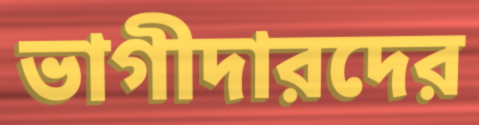
ভাগীদারদের